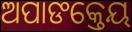
ଅପାଙକ୍ତେୟ